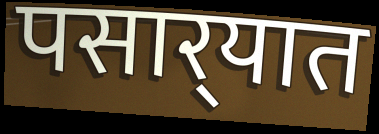
पसार्‍यात